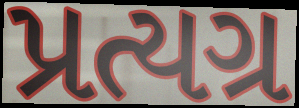
પ્રત્યગ્ર